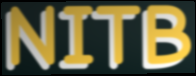
NITB